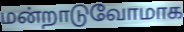
மன்றாடுவோமாக